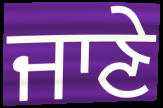
ਜਾਣੇ